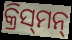
କ୍ରିସ୍‍ମନ୍